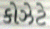
કોઝેટે